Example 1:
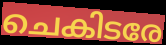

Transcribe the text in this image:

ചെകിടരേ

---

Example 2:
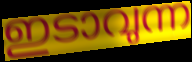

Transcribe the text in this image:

ഇടാവുന്ന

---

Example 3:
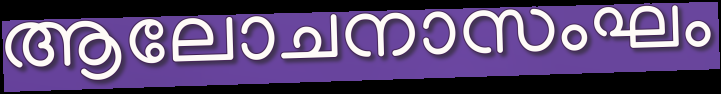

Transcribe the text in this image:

ആലോചനാസംഘം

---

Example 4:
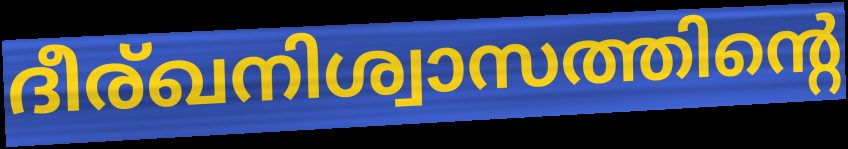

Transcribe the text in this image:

ദീര്ഖനിശ്വാസത്തിന്റെ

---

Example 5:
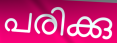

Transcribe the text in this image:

പരിക്കു